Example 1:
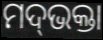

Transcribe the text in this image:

ମଦ୍‌ଭକ୍ତା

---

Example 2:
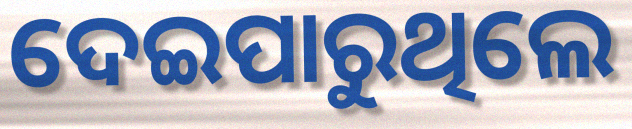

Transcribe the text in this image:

ଦେଇପାରୁଥିଲେ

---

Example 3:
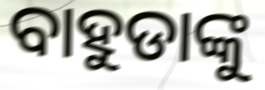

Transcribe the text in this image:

ବାହୁଡାଙ୍କୁ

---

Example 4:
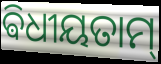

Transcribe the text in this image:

ଵିଧୀୟତାମ୍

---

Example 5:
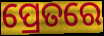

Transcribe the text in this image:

ପ୍ରେତରେ